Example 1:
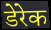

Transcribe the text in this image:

डेरेक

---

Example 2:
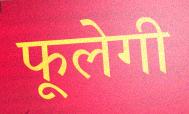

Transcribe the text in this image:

फूलेगी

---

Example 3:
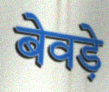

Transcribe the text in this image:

बेवड़े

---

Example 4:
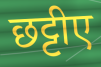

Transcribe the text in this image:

छट्टीए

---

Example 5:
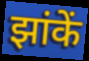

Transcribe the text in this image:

झांकें